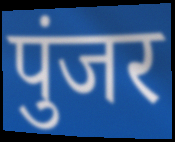
पुंजर